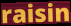
raisin